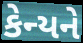
કેન્યને